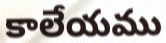
కాలేయము